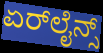
ಏರ್‌ಲೈನ್ಸ್